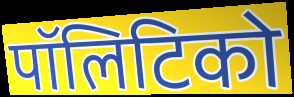
पॉलिटिको